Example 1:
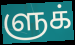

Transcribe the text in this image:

ளுக்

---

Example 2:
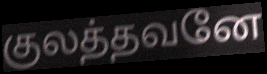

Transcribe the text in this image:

குலத்தவனே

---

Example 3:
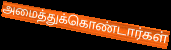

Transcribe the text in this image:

அமைத்துக்கொண்டார்கள்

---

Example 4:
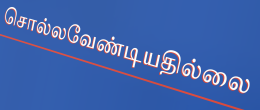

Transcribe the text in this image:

சொல்லவேண்டியதில்லை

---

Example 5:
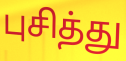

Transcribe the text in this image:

புசித்து